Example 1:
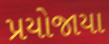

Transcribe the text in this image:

પ્રયોજાયા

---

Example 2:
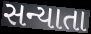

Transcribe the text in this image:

સન્યાતા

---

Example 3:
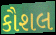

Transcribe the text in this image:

કૌશલ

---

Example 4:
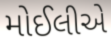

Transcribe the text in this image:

મોઈલીએ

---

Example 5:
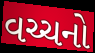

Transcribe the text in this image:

વચ્ચનો